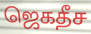
ஜெகதீச